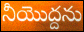
నీయొద్దను